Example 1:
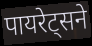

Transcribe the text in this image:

पायरेट्सने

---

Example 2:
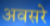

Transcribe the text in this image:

अवसरे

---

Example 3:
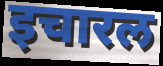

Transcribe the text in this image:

इचारल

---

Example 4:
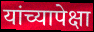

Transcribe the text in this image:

यांच्यापेक्षा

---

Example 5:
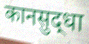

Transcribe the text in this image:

कानसुद्धा